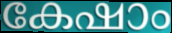
കേഷാം